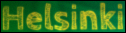
Helsinki